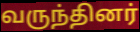
வருந்தினர்